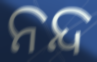
ନନ୍ଦ